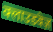
क्लाउडवेज़